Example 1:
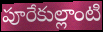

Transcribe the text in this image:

పూరేకుల్లాంటి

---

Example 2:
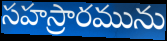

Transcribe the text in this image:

సహస్రారమును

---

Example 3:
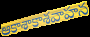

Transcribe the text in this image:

ఆకాశాకాశవాహన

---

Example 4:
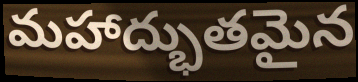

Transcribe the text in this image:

మహాద్భుతమైన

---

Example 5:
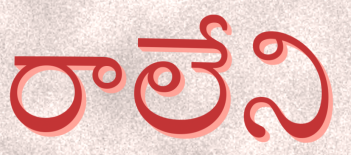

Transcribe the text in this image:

రాలేని